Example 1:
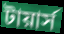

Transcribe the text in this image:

টায়ার্স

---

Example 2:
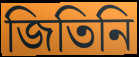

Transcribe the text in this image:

জিতিনি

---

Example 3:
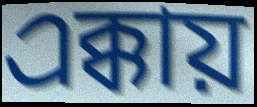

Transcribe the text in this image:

এক্কায়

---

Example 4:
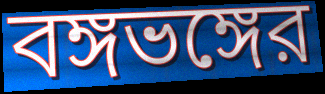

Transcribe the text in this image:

বঙ্গভঙ্গের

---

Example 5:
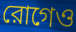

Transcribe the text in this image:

রোগেও